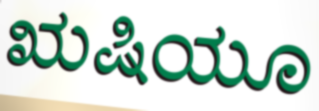
ಋಷಿಯೂ